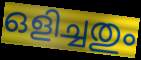
ഒളിച്ചതും